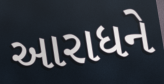
આરાધને